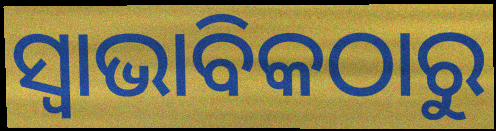
ସ୍ୱାଭାବିକଠାରୁ